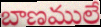
బాణములే